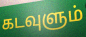
கடவுளும்